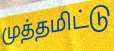
முத்தமிட்டு